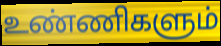
உண்ணிகளும்